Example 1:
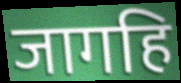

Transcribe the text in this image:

जागहि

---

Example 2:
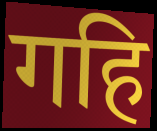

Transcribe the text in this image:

गहि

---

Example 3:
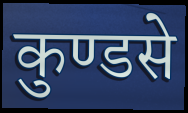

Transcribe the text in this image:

कुण्डसे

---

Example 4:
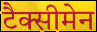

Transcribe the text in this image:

टैक्सीमेन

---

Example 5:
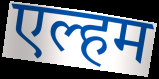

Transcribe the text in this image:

एल्हम